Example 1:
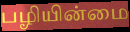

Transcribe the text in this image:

பழியின்மை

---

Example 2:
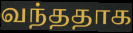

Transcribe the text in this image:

வந்ததாக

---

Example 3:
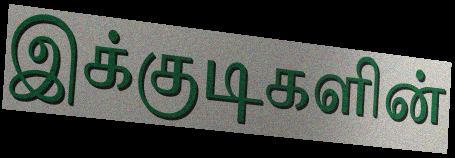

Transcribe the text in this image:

இக்குடிகளின்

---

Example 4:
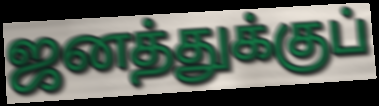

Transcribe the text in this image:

ஜனத்துக்குப்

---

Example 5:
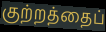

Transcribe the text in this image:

குற்றத்தைப்